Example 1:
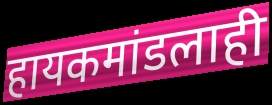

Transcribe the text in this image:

हायकमांडलाही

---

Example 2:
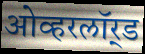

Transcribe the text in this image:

ओव्हरलॉर्ड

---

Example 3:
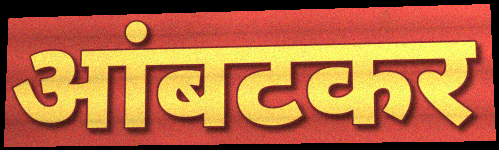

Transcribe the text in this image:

आंबटकर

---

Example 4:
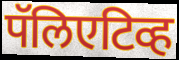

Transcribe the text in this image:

पॅलिएटिव्ह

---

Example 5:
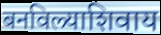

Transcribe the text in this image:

बनविल्याशिवाय